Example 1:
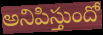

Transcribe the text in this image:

అనిపిస్తుందో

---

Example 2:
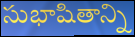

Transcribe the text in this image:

సుభాషితాన్ని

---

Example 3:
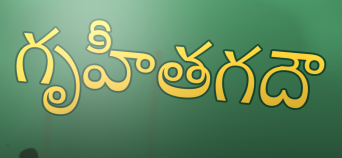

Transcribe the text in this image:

గృహీతగదౌ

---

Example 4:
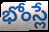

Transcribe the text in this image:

భోంస్లే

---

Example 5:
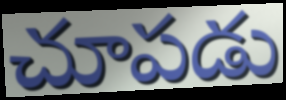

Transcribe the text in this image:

చూపడు